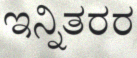
ಇನ್ನಿತರರ